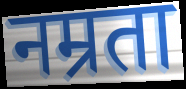
नम्रता